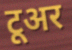
टूअर